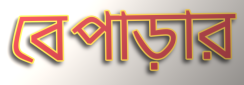
বেপাড়ার